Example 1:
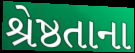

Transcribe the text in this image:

શ્રેષ્ઠતાના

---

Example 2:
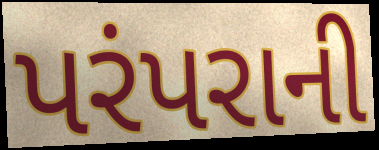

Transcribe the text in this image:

પરંપરાની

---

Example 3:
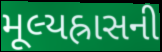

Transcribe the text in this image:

મૂલ્યહ્રાસની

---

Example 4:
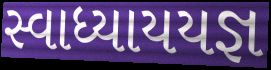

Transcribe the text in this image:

સ્વાધ્યાયયજ્ઞ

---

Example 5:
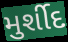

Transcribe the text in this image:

મુર્શીદ